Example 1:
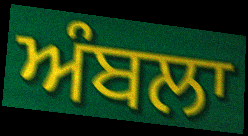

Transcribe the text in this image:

ਅੰਬਲਾ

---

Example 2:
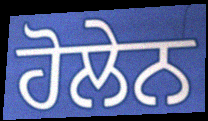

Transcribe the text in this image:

ਹੋਲੇਨ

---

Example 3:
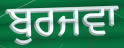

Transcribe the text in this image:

ਬੁਰਜਵਾ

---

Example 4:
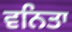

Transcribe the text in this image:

ਵਨਿਤਾ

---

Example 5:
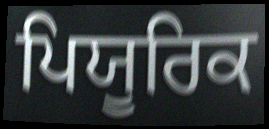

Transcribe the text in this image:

ਪਿਯੂਰਿਕ